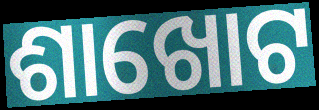
ଶାଖୋଟ